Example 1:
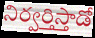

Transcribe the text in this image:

నిర్వర్తిస్తాడో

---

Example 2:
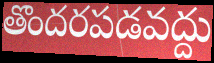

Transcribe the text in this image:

తొందరపడవద్దు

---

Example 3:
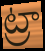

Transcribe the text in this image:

ట్రా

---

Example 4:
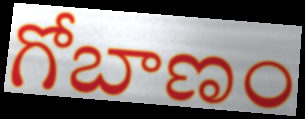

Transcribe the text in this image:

గోబాణం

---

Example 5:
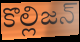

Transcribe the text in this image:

కొల్లిజన్